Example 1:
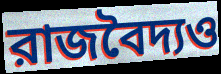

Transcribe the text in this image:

রাজবৈদ্যও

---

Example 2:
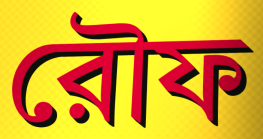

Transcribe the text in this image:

রৌফ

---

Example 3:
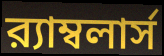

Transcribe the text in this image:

র‍্যাম্বলার্স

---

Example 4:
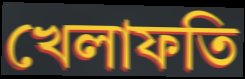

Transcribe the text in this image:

খেলাফতি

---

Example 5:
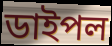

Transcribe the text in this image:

ডাইপল